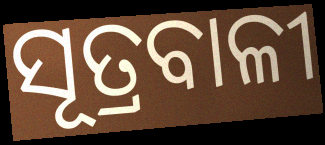
ସୂତ୍ରବାଳୀ